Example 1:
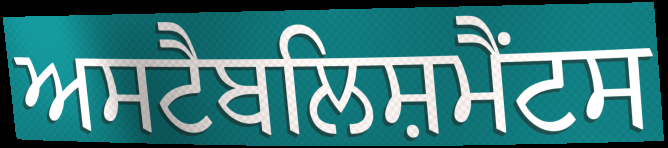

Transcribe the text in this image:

ਅਸਟੈਬਲਿਸ਼ਮੈਂਟਸ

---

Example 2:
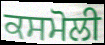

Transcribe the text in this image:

ਕਸਮੋਲੀ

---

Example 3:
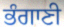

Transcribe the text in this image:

ਭੰਗਾਣੀ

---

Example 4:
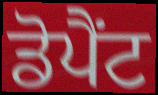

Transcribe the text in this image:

ਡੋਪੈਂਟ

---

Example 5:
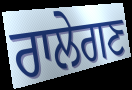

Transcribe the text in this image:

ਰਾਲੇਗਣ